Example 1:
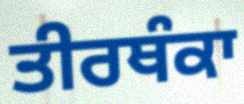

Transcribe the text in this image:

ਤੀਰਥੰਕਾ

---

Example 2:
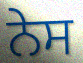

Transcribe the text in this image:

ਨੇਸ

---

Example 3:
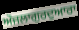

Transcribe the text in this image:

ਔਜਲਾਗੁਰਦੁਆਰਾ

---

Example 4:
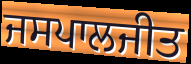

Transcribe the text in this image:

ਜਸਪਾਲਜੀਤ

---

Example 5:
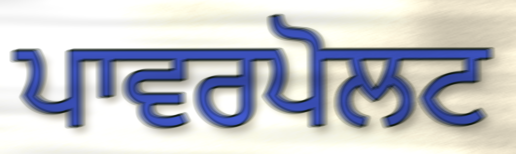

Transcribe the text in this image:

ਪਾਵਰਪੋਲਟ